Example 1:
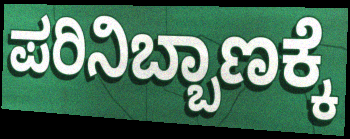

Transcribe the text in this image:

ಪರಿನಿಬ್ಬಾಣಕ್ಕೆ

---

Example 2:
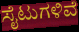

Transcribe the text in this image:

ಸೈಟುಗಳಿವೆ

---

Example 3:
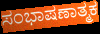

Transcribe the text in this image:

ಸಂಭಾಷಣಾತ್ಮಕ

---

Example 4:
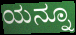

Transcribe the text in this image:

ಯನ್ನೂ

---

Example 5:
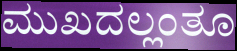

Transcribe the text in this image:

ಮುಖದಲ್ಲಂತೂ